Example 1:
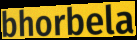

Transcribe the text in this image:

bhorbela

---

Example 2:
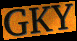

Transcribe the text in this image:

GKY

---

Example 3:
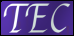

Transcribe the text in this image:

TEC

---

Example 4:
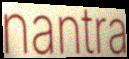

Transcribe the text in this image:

nantra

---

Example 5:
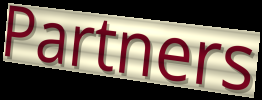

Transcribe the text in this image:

Partners